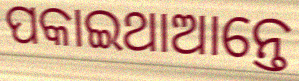
ପକାଇଥାଆନ୍ତେ